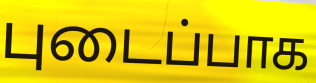
புடைப்பாக